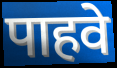
पाहवे